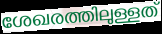
ശേഖരത്തിലുള്ളത്